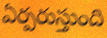
ఏర్పరుస్తుంది